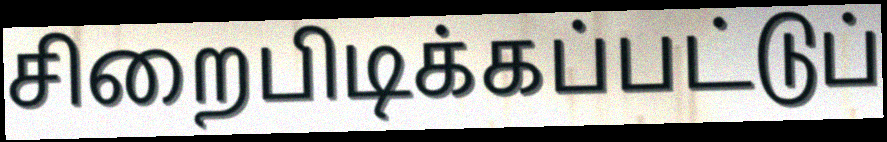
சிறைபிடிக்கப்பட்டுப்